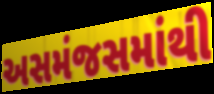
અસમંજસમાંથી